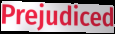
Prejudiced